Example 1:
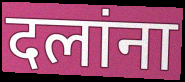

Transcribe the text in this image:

दलांना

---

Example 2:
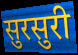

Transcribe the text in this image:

सुरसुरी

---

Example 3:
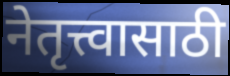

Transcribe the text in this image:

नेतृत्त्वासाठी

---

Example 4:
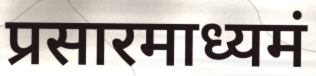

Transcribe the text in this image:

प्रसारमाध्यमं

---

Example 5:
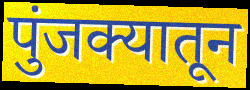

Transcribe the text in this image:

पुंजक्यातून